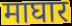
माघार